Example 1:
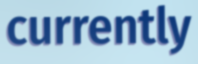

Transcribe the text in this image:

currently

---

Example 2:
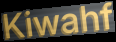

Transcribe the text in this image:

Kiwahf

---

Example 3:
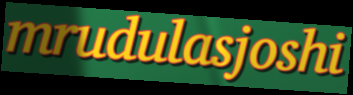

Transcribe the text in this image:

mrudulasjoshi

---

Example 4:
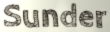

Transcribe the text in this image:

Sunder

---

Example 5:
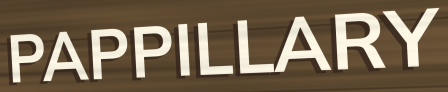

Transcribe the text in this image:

PAPPILLARY